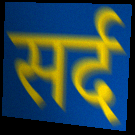
सर्द